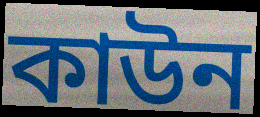
কাউন